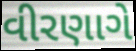
વીરણાગે